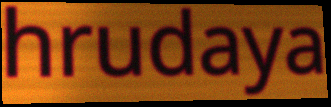
hrudaya